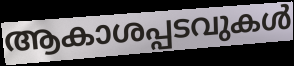
ആകാശപ്പടവുകൾ